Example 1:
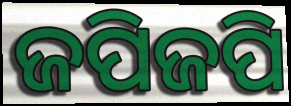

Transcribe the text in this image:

ଜପିଜପି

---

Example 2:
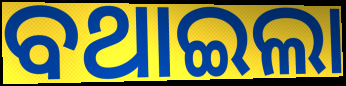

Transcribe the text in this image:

ବଥାଇଲା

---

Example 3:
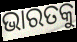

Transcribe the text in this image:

ଭାରତକୁ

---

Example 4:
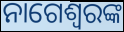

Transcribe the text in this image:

ନାଗେଶ୍ୱରଙ୍କ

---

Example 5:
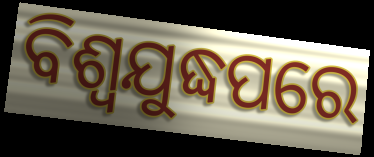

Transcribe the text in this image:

ବିଶ୍ୱଯୁଦ୍ଧପରେ